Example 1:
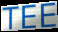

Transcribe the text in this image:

TEE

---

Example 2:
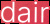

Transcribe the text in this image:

dair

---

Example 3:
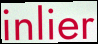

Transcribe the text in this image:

inlier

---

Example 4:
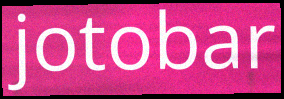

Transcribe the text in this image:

jotobar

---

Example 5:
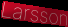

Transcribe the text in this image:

Larsson